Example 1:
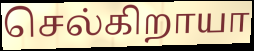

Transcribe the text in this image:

செல்கிறாயா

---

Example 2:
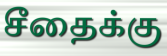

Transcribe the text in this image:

சீதைக்கு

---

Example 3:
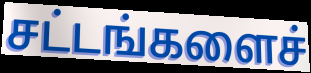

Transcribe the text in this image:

சட்டங்களைச்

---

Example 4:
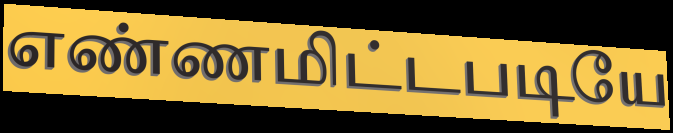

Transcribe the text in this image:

எண்ணமிட்டபடியே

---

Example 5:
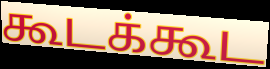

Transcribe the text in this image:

கூடக்கூட